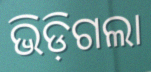
ଭିଡ଼ିଗଲା